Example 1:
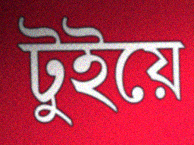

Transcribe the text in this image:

টুইয়ে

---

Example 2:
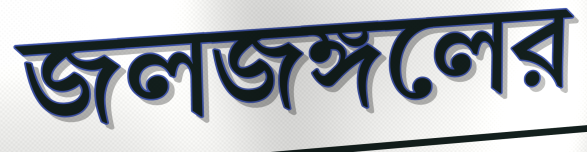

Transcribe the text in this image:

জলজঙ্গলের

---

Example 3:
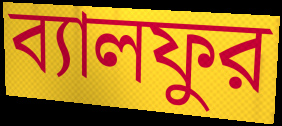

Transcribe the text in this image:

ব্যালফুর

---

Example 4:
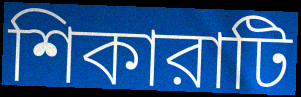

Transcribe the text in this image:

শিকারাটি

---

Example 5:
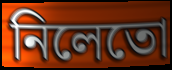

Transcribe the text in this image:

নিলেতো